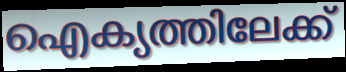
ഐക്യത്തിലേക്ക്